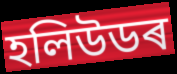
হলিউডৰ